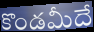
కొండమీదే